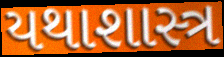
યથાશાસ્‍ત્ર